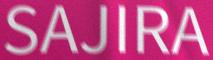
SAJIRA